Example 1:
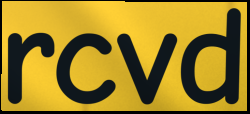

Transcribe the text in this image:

rcvd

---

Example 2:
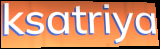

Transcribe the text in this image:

ksatriya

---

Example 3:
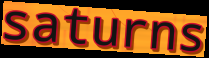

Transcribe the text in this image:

saturns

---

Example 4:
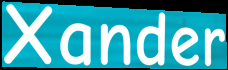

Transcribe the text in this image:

Xander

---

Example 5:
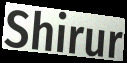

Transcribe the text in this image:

Shirur